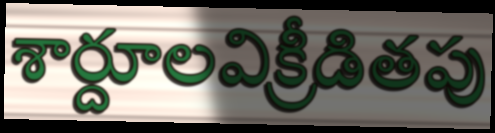
శార్దూలవిక్రీడితపు